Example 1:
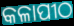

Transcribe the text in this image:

କଳାପୀଠ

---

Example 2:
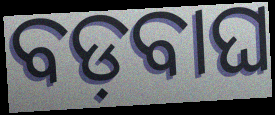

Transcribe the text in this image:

ବଡ଼ବାଘ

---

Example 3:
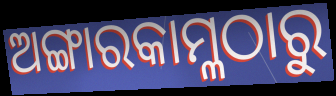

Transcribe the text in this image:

ଅଙ୍ଗାରକାମ୍ଳଠାରୁ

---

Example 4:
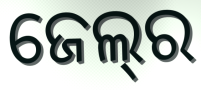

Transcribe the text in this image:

ଜେଲ୍‍ର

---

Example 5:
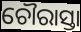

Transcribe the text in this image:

ଚୌରାସ୍ତା